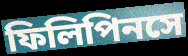
ফিলিপিনসে